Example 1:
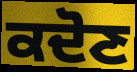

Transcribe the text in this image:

ਕਦੋਣ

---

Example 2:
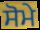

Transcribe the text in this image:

ਸੋਮੇ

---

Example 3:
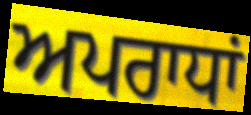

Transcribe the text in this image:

ਅਪਰਾਧਾਂ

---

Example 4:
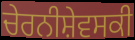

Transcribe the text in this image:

ਚੇਰਨੀਸ਼ੇਵਸਕੀ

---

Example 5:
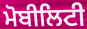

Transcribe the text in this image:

ਮੋਬੀਲਿਟੀ